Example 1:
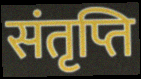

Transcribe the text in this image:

संतृप्ति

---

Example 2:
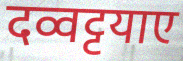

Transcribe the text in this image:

दव्वट्टयाए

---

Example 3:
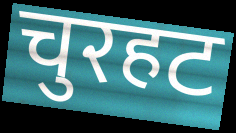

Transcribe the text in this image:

चुरहट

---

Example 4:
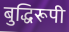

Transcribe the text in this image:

बुद्धिरूपी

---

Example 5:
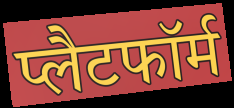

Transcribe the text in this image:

प्लैटफॉर्म